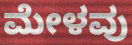
ಮೇಳವು